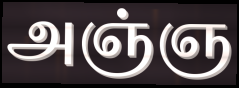
அஞ்ஞ